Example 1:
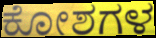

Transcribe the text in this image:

ಕೋಶಗಳ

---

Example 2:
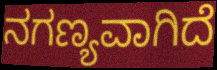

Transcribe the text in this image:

ನಗಣ್ಯವಾಗಿದೆ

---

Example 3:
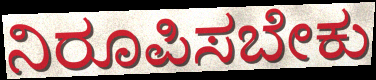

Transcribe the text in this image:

ನಿರೂಪಿಸಬೇಕು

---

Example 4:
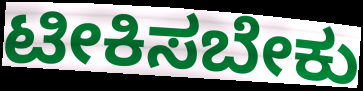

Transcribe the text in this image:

ಟೀಕಿಸಬೇಕು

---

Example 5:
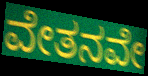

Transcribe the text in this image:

ವೇತನವೇ